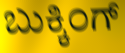
ಬುಕ್ಕಿಂಗ್